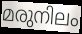
മരുനിലം